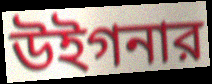
উইগনার